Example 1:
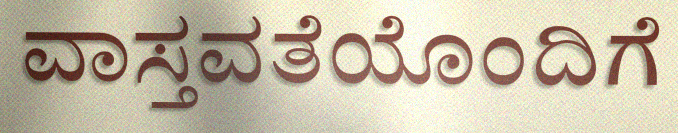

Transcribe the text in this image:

ವಾಸ್ತವತೆಯೊಂದಿಗೆ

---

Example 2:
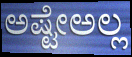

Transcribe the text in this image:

ಅಷ್ಟೇಅಲ್ಲ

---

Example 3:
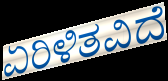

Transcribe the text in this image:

ಏರಿಳಿತವಿದೆ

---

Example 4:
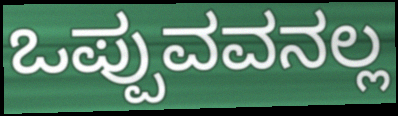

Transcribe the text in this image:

ಒಪ್ಪುವವನಲ್ಲ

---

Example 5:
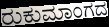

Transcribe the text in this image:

ರುಕುಮಾಂಗದ